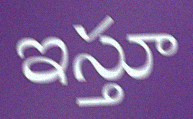
ఇస్తూ